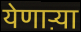
येणाऱ्‍या